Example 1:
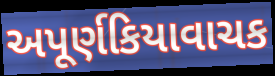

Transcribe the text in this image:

અપૂર્ણકિયાવાચક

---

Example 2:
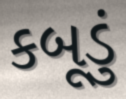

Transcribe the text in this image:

કબૂડું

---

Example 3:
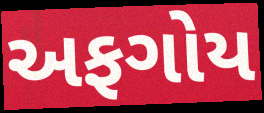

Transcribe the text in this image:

અફગોય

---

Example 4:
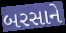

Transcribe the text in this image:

બરસાને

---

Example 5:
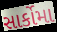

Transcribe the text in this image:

સાર્કોમા